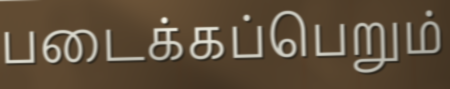
படைக்கப்பெறும்